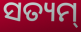
ସତ୍ୟମ୍